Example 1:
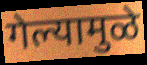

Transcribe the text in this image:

गेल्यामुळे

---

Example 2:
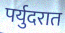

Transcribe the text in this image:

पर्युदरात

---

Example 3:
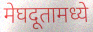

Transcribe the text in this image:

मेघदूतामध्ये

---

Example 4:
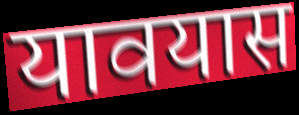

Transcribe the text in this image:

यावयास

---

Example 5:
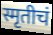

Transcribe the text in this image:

स्मृतीचं